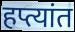
हप्त्यांत